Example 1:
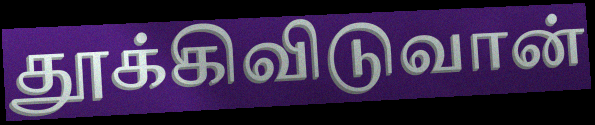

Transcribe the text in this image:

தூக்கிவிடுவான்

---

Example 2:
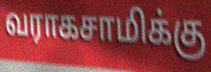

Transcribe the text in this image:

வராகசாமிக்கு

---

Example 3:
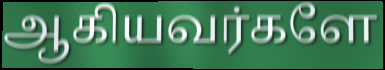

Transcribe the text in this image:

ஆகியவர்களே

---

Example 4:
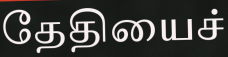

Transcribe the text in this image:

தேதியைச்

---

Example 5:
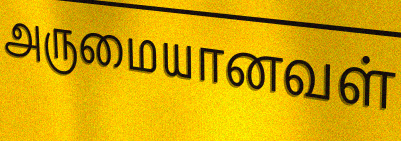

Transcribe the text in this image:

அருமையானவள்